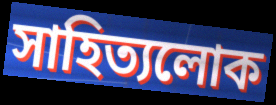
সাহিত্যলোক